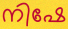
നിഷേ